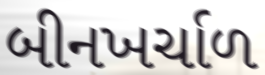
બીનખર્ચાળ